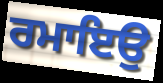
ਰਮਾਇਉ